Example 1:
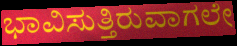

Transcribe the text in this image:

ಭಾವಿಸುತ್ತಿರುವಾಗಲೇ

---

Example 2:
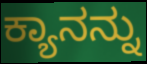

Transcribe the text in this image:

ಕ್ಯಾನನ್ನು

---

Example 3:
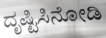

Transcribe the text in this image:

ದೃಷ್ಟಿಸಿನೋಡಿ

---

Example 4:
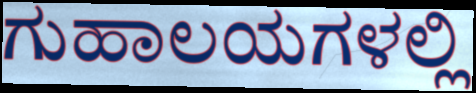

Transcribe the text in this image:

ಗುಹಾಲಯಗಳಲ್ಲಿ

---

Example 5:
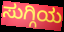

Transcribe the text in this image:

ಸುಗ್ಗಿಯ